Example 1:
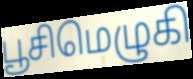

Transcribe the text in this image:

பூசிமெழுகி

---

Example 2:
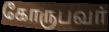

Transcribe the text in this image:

கோருபவர்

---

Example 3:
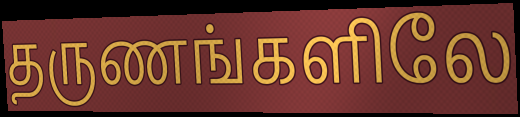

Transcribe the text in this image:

தருணங்களிலே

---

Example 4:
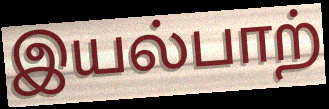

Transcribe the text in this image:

இயல்பாற்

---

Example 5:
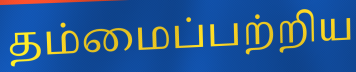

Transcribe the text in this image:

தம்மைப்பற்றிய